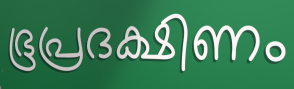
ഭൂപ്രദക്ഷിണം